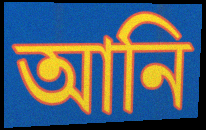
আনি